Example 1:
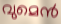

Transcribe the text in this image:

വുമെൻ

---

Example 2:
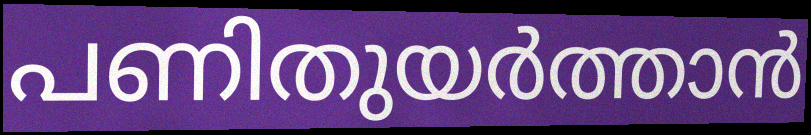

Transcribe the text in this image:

പണിതുയർത്താൻ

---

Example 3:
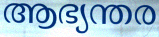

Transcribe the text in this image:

ആഭ്യന്തര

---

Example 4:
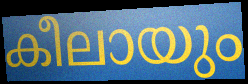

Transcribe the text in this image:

കീലായും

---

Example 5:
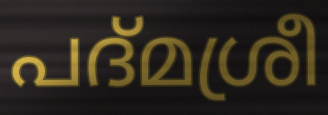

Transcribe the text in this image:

പദ്മശ്രീ